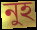
নুহ